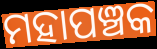
ମହାପଞ୍ଚକ